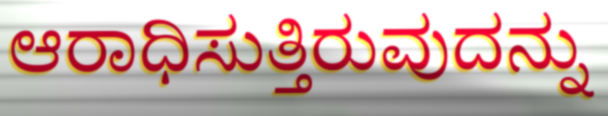
ಆರಾಧಿಸುತ್ತಿರುವುದನ್ನು